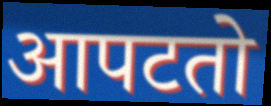
आपटतो